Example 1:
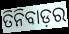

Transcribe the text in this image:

ତିନିବାଡ଼ର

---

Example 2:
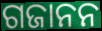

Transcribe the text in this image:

ଗଜାନନ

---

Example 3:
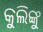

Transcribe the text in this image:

କୁଲିଙ୍କୁ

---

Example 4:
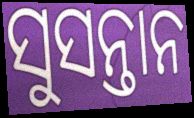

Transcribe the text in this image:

ସୁସନ୍ତାନ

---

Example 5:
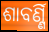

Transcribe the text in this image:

ଶାବର୍ଣ୍ଣି